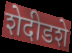
शेदीडशे